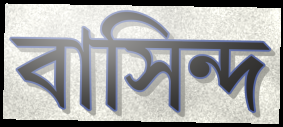
বাসিন্দ